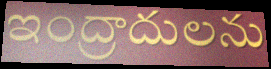
ఇంద్రాదులను